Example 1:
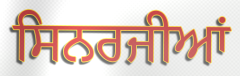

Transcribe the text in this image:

ਸਿਨਰਜੀਆਂ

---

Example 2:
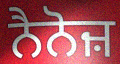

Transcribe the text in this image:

ਨੈਨੋਜ਼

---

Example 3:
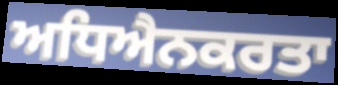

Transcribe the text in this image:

ਅਧਿਐਨਕਰਤਾ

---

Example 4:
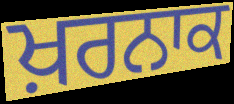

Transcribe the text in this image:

ਖ਼ਰਨਾਕ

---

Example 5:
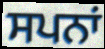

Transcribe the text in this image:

ਸਪਨਾਂ